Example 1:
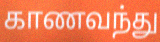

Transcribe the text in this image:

காணவந்து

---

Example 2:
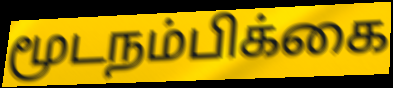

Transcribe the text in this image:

மூடநம்பிக்கை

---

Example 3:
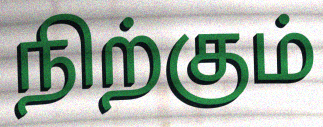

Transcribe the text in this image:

நிற்கும்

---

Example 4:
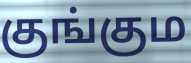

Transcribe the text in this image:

குங்கும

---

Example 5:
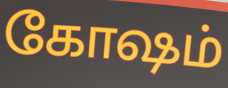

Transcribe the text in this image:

கோஷம்